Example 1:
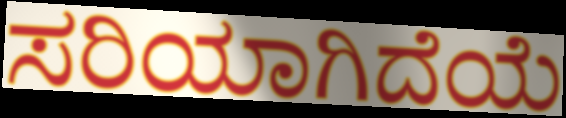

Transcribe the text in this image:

ಸರಿಯಾಗಿದೆಯೆ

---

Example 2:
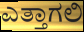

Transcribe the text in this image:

ಎತ್ತಾಗಲಿ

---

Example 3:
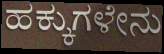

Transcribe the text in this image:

ಹಕ್ಕುಗಳೇನು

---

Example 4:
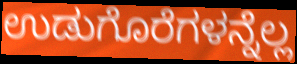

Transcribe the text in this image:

ಉಡುಗೊರೆಗಳನ್ನೆಲ್ಲ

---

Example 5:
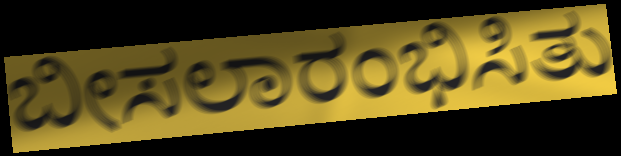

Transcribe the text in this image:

ಬೀಸಲಾರಂಭಿಸಿತು